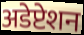
अडेप्टेशन